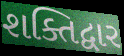
શક્તિદ્વાર